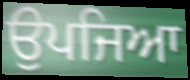
ਉਪਜਿਆ